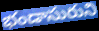
భండాసురుని